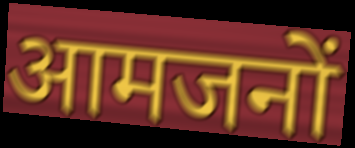
आमजनों